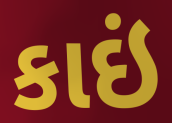
કાઇં